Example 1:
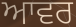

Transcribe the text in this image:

ਆਵਰ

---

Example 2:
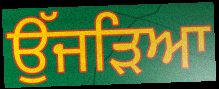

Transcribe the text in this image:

ਉੱਜੜਿਆ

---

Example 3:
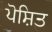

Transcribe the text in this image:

ਪੋਸ਼ਿਤ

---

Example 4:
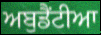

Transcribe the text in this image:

ਅਬੁਡੈਂਟੀਆ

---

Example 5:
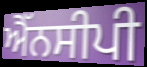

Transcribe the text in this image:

ਐੱਨਸੀਪੀ